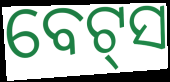
ବେଟ୍‌ସ